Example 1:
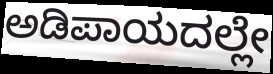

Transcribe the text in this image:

ಅಡಿಪಾಯದಲ್ಲೇ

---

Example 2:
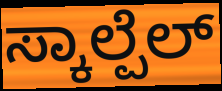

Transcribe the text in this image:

ಸ್ಕಾಲ್ಪೆಲ್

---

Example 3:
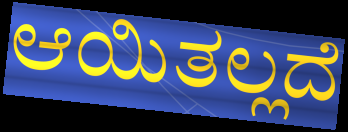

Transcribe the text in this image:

ಆಯಿತಲ್ಲದೆ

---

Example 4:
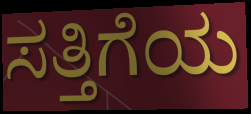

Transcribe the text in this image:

ಸತ್ತಿಗೆಯ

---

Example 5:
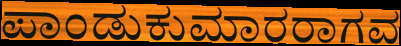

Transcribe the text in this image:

ಪಾಂಡುಕುಮಾರರಾಗವ